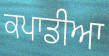
ਕਪਾਡੀਆ